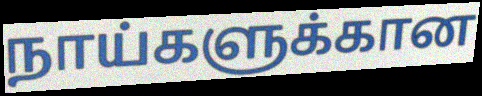
நாய்களுக்கான